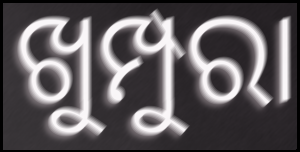
ଖୁମ୍ପୁରା